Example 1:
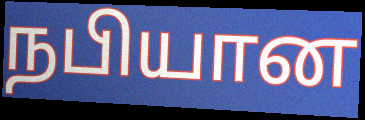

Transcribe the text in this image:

நபியான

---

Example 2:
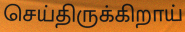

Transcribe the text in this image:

செய்திருக்கிறாய்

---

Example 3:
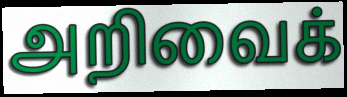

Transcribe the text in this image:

அறிவைக்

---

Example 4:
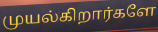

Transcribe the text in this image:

முயல்கிறார்களே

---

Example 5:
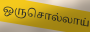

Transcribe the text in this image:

ஒருசொல்லாய்